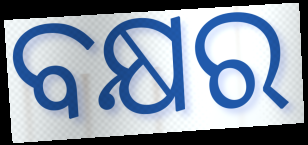
ବକ୍ଷର